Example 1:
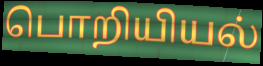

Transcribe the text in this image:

பொறியியல்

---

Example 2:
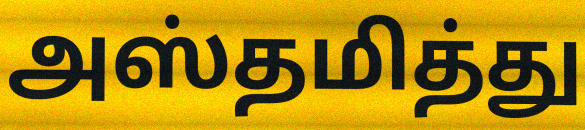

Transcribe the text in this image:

அஸ்தமித்து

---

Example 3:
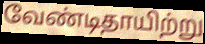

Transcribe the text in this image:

வேண்டிதாயிற்று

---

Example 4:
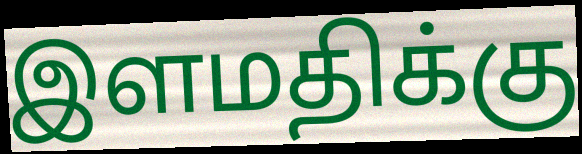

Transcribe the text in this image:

இளமதிக்கு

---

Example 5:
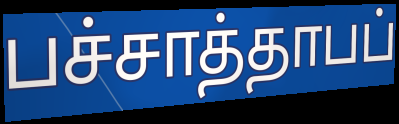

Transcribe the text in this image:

பச்சாத்தாபப்